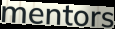
mentors